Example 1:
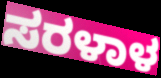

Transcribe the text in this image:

ಸರಳಾಳ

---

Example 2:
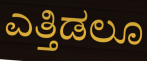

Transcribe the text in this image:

ಎತ್ತಿಡಲೂ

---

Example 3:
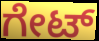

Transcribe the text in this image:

ಗೇಟ್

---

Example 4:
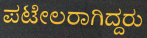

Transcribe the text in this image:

ಪಟೇಲರಾಗಿದ್ದರು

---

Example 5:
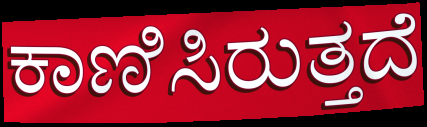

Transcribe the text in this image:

ಕಾಣಿಸಿರುತ್ತದೆ